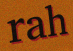
rah